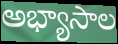
అభ్యాసాల